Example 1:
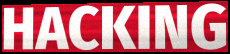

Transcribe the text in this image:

HACKING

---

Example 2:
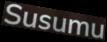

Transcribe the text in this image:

Susumu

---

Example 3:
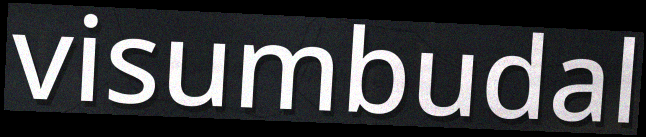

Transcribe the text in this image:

visumbudal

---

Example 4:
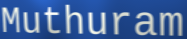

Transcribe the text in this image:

Muthuram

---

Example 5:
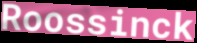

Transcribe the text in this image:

Roossinck